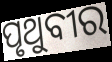
ପୃଥୁବୀର